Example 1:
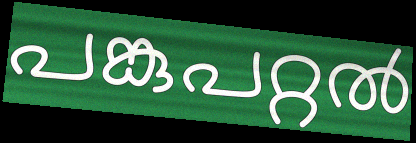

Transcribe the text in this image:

പങ്കുപറ്റൽ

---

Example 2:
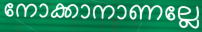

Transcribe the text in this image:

നോക്കാനാണല്ലേ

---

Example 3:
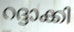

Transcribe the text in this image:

റദ്ദാക്കി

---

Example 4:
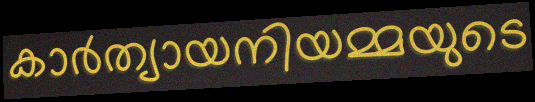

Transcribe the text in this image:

കാർത്യായനിയമ്മയുടെ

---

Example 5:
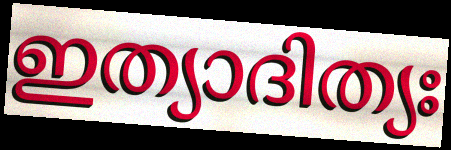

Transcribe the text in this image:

ഇത്യാദിത്യഃ